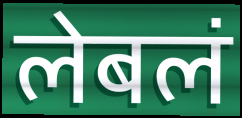
लेबलं